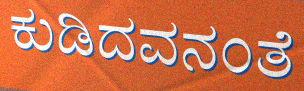
ಕುಡಿದವನಂತೆ